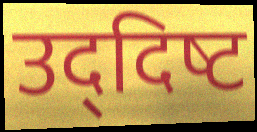
उद्‌दिष्‍ट